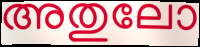
അതുലോ